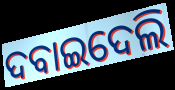
ଦବାଇଦେଲି